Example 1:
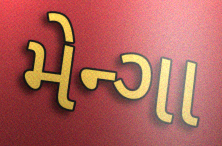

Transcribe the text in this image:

મેન્ગા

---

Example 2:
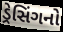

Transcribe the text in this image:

ડ્રેસિંગનો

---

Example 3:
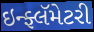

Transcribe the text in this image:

ઇન્ફ્લૅમેટરી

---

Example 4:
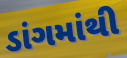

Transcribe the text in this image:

ડાંગમાંથી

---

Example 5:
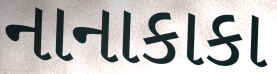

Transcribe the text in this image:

નાનાકાકા